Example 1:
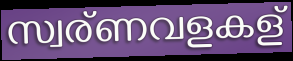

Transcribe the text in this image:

സ്വര്ണവളകള്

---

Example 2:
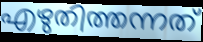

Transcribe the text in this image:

എഴുതിത്തന്നത്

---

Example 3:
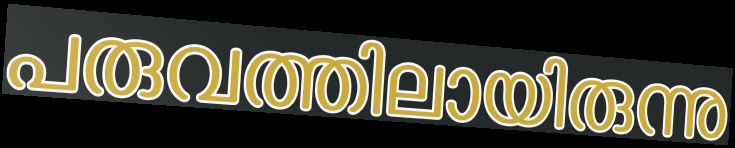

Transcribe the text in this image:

പരുവത്തിലായിരുന്നു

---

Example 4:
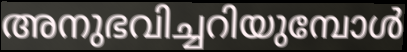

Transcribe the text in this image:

അനുഭവിച്ചറിയുമ്പോൾ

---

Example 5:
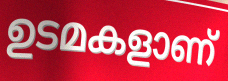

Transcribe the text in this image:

ഉടമകളാണ്